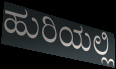
ಹುರಿಯಲ್ಲಿ